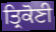
ਤ੍ਰਿਕੋਣੀ